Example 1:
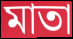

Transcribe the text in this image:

মাতা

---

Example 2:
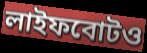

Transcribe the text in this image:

লাইফবোটও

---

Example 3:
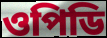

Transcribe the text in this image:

ওপিডি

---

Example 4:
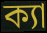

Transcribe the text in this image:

ক্যা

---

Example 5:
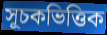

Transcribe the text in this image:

সূচকভিত্তিক